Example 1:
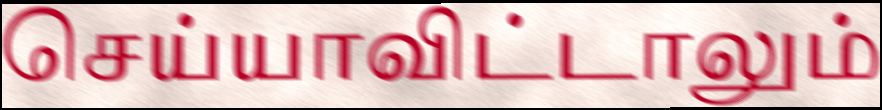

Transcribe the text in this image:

செய்யாவிட்டாலும்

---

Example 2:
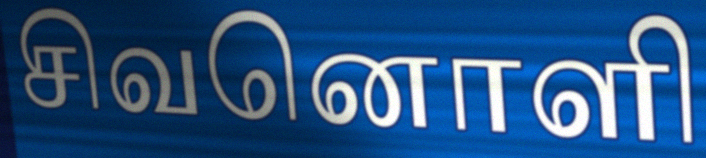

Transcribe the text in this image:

சிவனொளி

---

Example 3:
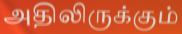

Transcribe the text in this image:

அதிலிருக்கும்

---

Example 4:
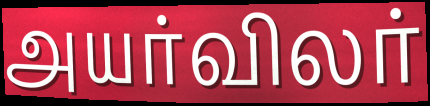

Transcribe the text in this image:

அயர்விலர்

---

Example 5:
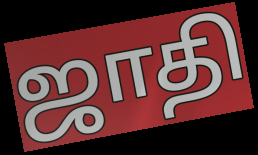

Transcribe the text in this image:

ஜாதி